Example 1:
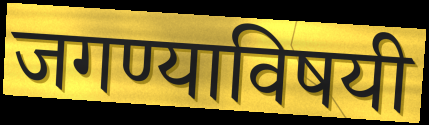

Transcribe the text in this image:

जगण्याविषयी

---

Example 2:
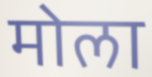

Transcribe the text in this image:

मोला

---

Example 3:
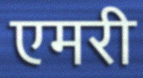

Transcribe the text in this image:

एमरी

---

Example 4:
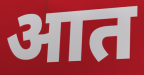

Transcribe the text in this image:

आत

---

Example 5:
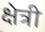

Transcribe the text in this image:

क्षेत्री